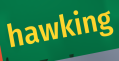
hawking